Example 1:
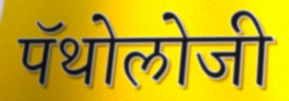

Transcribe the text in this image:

पॅथोलोजी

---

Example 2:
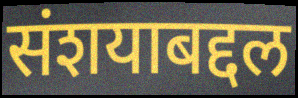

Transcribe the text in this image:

संशयाबद्दल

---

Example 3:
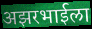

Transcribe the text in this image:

अझरभाईला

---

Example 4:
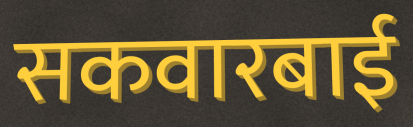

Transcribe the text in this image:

सकवारबाई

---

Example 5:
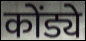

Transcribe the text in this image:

कोंड्ये